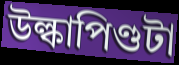
উল্কাপিণ্ডটা